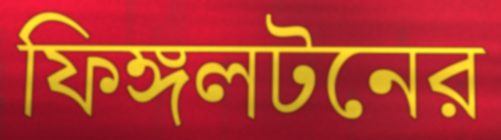
ফিঙ্গলটনের